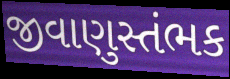
જીવાણુસ્તંભક